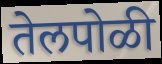
तेलपोळी